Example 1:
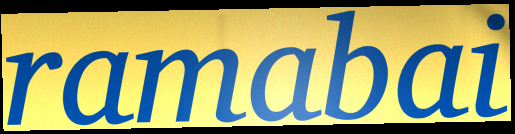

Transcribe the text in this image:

ramabai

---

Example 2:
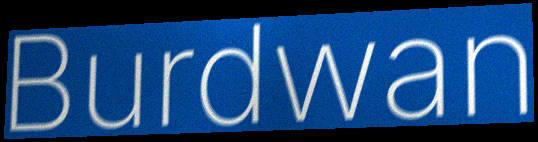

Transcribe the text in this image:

Burdwan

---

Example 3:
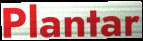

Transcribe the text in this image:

Plantar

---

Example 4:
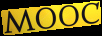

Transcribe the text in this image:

MOOC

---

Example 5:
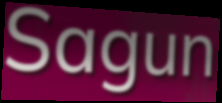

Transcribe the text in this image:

Sagun